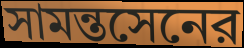
সামন্তসেনের